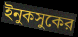
ইনুকসুকের